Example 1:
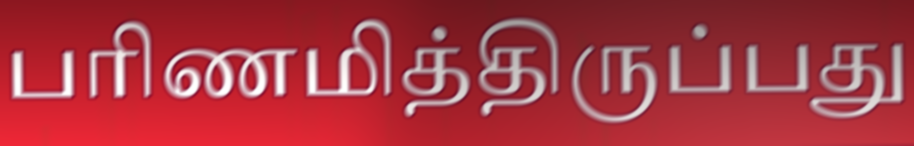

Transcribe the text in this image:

பரிணமித்திருப்பது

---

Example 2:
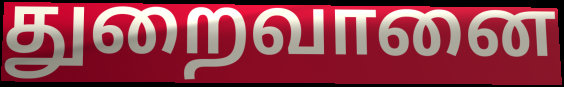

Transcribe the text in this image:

துறைவானை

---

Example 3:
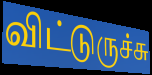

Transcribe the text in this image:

விட்டுருச்சு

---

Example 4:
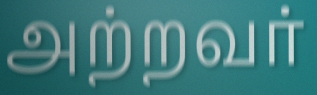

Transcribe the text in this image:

அற்றவர்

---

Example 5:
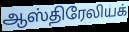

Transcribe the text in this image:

ஆஸ்திரேலியக்